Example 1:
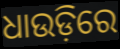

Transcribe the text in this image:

ଧାଉଡ଼ିରେ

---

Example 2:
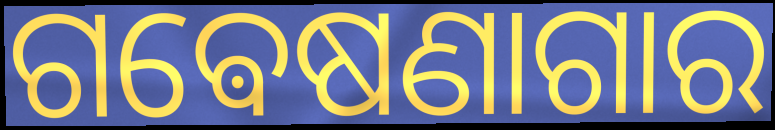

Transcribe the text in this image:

ଗଵେଷଣାଗାର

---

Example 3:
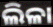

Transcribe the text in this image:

ଲିଳା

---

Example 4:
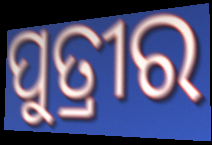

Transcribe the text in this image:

ପୁତ୍ରୀର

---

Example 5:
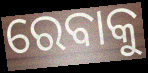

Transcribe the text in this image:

ରେବାକୁ